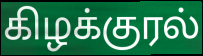
கிழக்குரல்